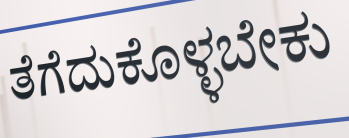
ತೆಗೆದುಕೊಳ್ಳಬೇಕು